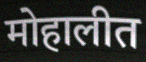
मोहालीत